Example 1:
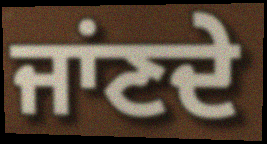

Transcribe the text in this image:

ਜਾਂਣਦੇ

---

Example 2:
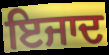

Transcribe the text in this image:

ਇਜਾਦ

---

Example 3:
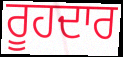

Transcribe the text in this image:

ਰੂਹਦਾਰ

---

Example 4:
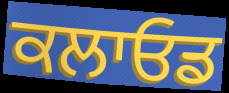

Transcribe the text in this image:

ਕਲਾਓਡ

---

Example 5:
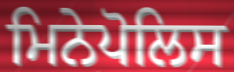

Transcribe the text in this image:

ਮਿਨੇਪੋਲਿਸ